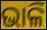
ଭାଳି